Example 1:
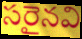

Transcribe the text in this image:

సరైనవి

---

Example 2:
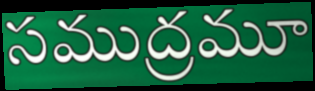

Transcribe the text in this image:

సముద్రమూ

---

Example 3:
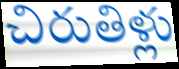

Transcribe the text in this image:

చిరుతిళ్లు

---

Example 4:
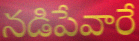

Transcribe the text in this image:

నడిపేవారే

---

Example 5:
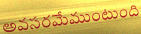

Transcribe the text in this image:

అవసరమేముంటుంది